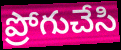
ప్రోగుచేసి